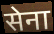
सेना